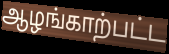
ஆழங்காற்பட்ட